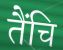
तैंचि